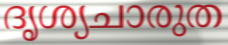
ദൃശ്യചാരുത